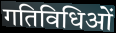
गतिविधिओं